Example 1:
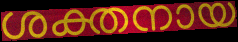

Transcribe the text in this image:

ശക്തനായ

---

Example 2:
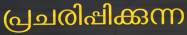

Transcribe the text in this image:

പ്രചരിപ്പിക്കുന്ന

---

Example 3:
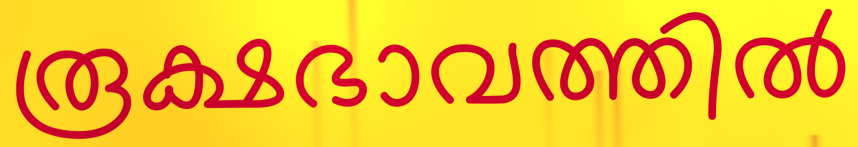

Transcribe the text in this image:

രൂക്ഷഭാവത്തിൽ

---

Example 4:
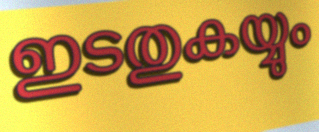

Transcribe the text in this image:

ഇടതുകയ്യും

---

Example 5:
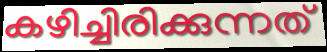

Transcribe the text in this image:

കഴിച്ചിരിക്കുന്നത്